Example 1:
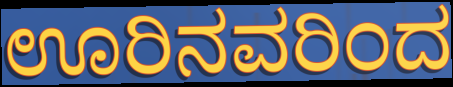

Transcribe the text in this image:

ಊರಿನವರಿಂದ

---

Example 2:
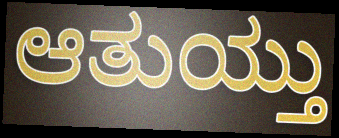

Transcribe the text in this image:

ಆತುಯ್ತು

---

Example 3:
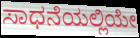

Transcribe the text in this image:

ಸಾಧನೆಯಲ್ಲಿಯೇ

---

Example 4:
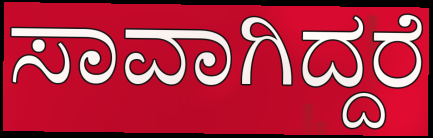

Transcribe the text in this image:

ಸಾವಾಗಿದ್ದರೆ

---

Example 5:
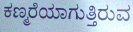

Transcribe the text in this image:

ಕಣ್ಮರೆಯಾಗುತ್ತಿರುವ